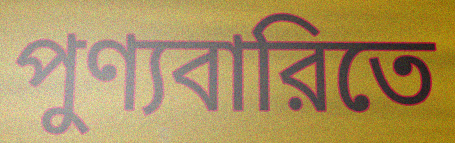
পুণ্যবারিতে